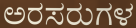
ಅರಸರುಗಳ